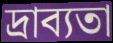
দ্রাব্যতা